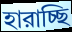
হারাচ্ছি